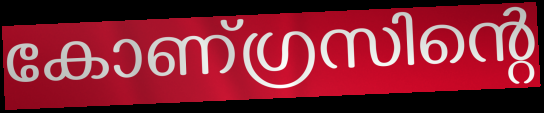
കോണ്ഗ്രസിന്റെ